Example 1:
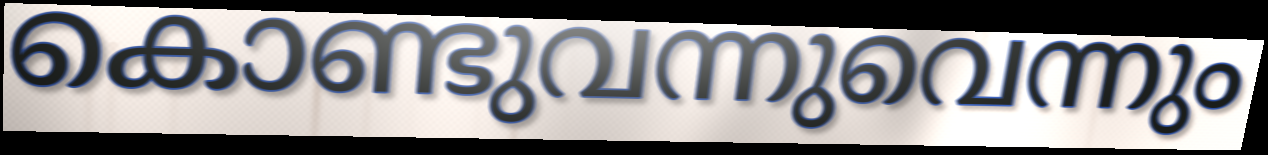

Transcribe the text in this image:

കൊണ്ടുവന്നുവെന്നും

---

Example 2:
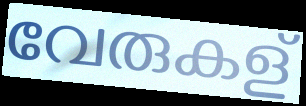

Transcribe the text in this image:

വേരുകള്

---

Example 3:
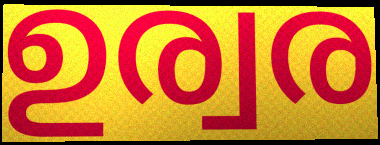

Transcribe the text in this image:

ഉര്വര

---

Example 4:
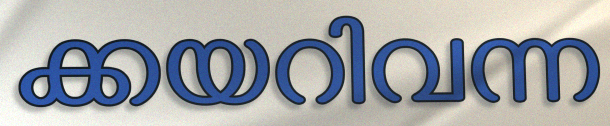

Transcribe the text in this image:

ക്കയറിവന്ന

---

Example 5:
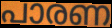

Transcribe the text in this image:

പാരണ